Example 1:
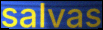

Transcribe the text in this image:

salvas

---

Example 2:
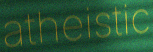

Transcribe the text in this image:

atheistic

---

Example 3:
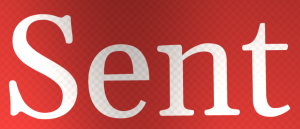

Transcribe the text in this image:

Sent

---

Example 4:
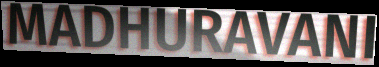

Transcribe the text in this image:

MADHURAVANI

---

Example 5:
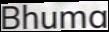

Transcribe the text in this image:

Bhuma